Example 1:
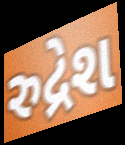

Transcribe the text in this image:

રુદ્રેશ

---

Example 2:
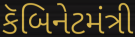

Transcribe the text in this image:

કૅબિનેટમંત્રી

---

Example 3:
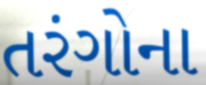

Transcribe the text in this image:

તરંગોના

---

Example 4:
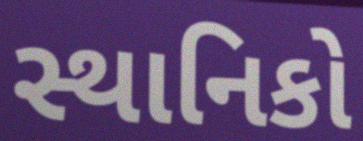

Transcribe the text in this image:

સ્થાનિકો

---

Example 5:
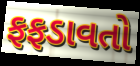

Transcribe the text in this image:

ફફડાવતો